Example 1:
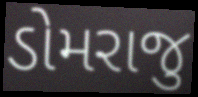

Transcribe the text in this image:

ડોમરાજુ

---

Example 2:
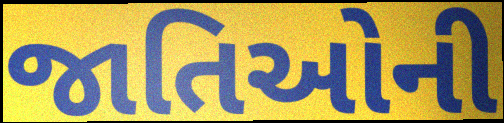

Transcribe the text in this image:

જાતિઓની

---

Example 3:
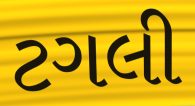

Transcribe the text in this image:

ટગલી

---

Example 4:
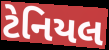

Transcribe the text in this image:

ટેનિયલ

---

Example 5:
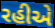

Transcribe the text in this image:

રહીએ